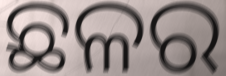
ଛଳର